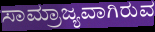
ಸಾಮ್ರಾಜ್ಯವಾಗಿರುವ